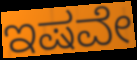
ಇಷವೇ